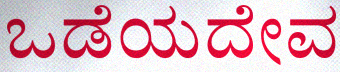
ಒಡೆಯದೇವ